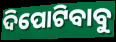
ଦିପୋଟିବାବୁ